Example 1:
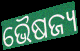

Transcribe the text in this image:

ଭୈଷଜ୍ୟ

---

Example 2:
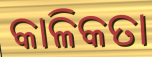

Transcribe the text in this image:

କାଳିକତା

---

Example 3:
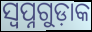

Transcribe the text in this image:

ସ୍ୱପ୍ନଗୁଡ଼ାକ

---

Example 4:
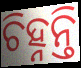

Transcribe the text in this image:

ଚିହ୍ନନ୍ତି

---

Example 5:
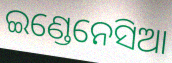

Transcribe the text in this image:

ଇଣ୍ଡେନେସିଆ